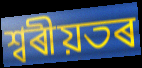
শ্বৰীয়তৰ